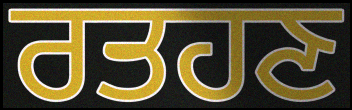
ਰਤਹਣ